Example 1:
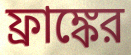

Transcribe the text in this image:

ফ্রাঙ্কের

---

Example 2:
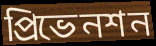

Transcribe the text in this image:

প্রিভেনশন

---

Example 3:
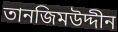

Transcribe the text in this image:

তানজিমউদ্দীন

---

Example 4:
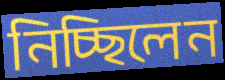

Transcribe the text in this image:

নিচ্ছিলেন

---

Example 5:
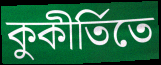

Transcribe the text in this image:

কুকীর্তিতে